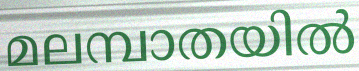
മലമ്പാതയിൽ